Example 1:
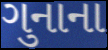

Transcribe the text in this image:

ગુનાના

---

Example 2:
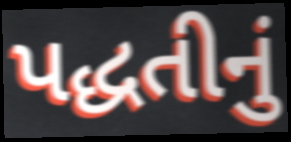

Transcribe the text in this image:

પદ્ધતીનું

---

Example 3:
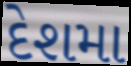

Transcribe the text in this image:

દેશમા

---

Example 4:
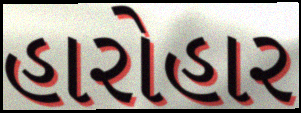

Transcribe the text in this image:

હારોહાર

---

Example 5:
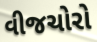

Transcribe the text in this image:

વીજચોરો